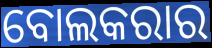
ବୋଲକରାର